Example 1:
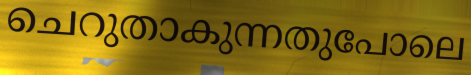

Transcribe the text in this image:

ചെറുതാകുന്നതുപോലെ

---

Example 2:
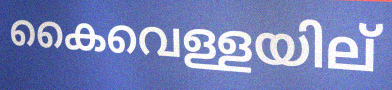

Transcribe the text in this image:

കൈവെള്ളയില്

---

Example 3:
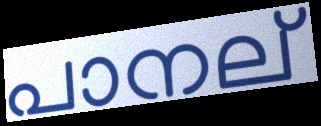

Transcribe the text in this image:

പാനല്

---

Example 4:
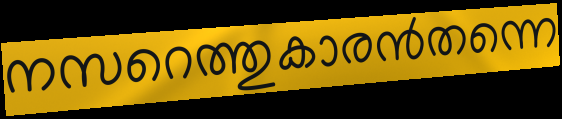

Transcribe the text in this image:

നസറെത്തുകാരൻതന്നെ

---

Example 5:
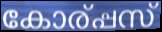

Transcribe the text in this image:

കോര്പ്പസ്